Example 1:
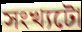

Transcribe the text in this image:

সংখ্যটো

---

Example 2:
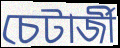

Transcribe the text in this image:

চেটাৰ্জী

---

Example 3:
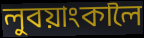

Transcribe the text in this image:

লুবয়াংকালৈ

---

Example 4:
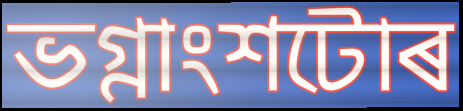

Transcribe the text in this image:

ভগ্নাংশটোৰ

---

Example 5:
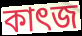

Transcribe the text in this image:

কাৎজ